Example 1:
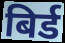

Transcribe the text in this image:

बिर्ड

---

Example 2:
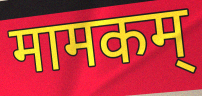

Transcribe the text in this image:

मामकम्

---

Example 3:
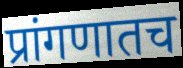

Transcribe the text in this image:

प्रांगणातच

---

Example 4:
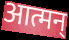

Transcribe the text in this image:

आत्मन्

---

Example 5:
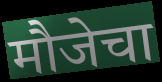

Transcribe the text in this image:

मौजेचा